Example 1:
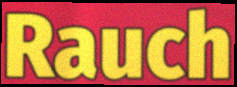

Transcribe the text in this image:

Rauch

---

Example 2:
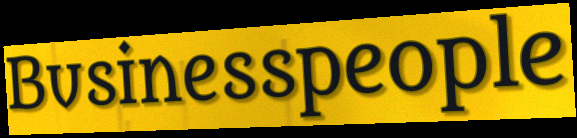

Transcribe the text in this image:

Businesspeople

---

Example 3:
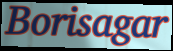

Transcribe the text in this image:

Borisagar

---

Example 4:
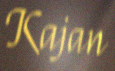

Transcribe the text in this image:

Kajan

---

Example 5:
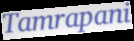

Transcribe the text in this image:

Tamrapani